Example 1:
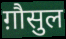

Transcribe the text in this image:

ग़ौसुल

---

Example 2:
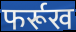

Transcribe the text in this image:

फर्रूख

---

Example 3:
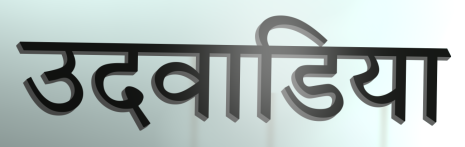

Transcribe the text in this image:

उदवाडिया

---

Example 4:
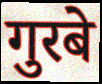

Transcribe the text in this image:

गुरबे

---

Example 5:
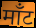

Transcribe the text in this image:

माँट